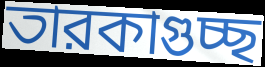
তারকাগুচ্ছ